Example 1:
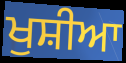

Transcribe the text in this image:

ਖੁਸ਼ੀਆ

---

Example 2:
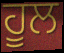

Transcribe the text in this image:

ਹੂਲ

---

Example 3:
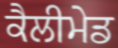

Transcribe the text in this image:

ਕੈਲੀਮੇਡ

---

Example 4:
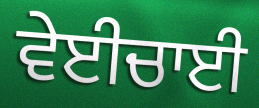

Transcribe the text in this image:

ਵੇਈਚਾਈ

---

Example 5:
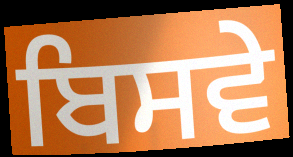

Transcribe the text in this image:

ਬਿਸਵੇ